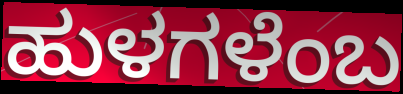
ಹುಳಗಳೆಂಬ